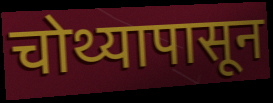
चोथ्यापासून